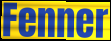
Fenner